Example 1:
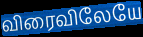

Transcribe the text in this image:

விரைவிலேயே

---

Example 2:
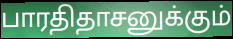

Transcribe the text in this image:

பாரதிதாசனுக்கும்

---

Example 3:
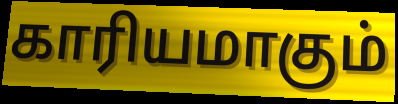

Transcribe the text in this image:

காரியமாகும்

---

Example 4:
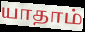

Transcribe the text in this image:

யாதாம்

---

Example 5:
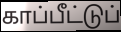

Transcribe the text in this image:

காப்பீட்டுப்